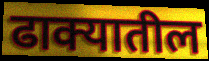
ढाक्यातील